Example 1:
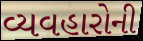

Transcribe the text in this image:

વ્યવહારોની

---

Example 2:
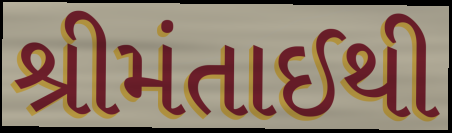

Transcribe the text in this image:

શ્રીમંતાઈથી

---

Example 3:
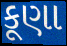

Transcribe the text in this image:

કૂણા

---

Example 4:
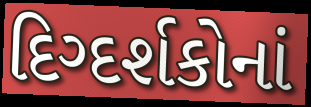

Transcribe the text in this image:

દિગ્દર્શકોનાં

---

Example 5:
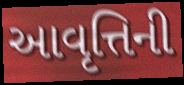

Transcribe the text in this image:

આવૃત્તિની